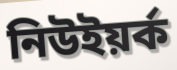
নিউইয়র্ক